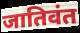
जातिवंत